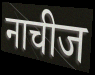
नाचीज